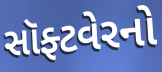
સૉફ્ટવેરનો